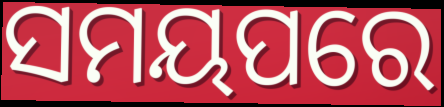
ସମୟପରେ